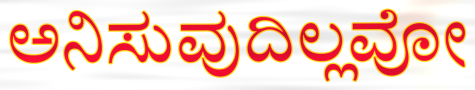
ಅನಿಸುವುದಿಲ್ಲವೋ